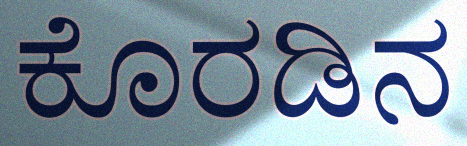
ಕೊರಡಿನ